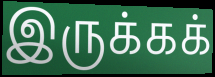
இருக்கக்